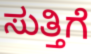
ಸುತ್ತಿಗೆ